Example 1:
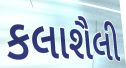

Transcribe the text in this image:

કલાશૈલી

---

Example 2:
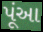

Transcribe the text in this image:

પૂંઆ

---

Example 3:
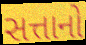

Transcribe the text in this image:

સત્તાનો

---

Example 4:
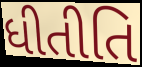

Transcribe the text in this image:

ધીતીતિ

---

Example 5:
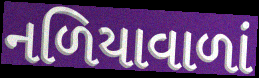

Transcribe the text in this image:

નળિયાવાળાં